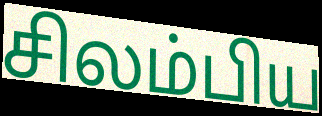
சிலம்பிய